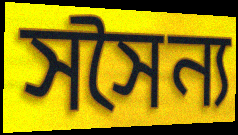
সসৈন্য